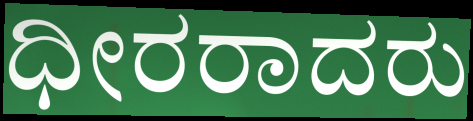
ಧೀರರಾದರು